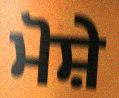
ਮੋਸ਼ੇ